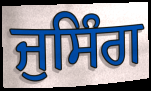
ਜੁਸਿੰਗ